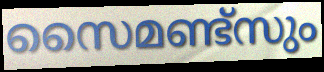
സൈമണ്ട്സും